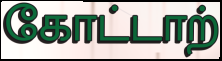
கோட்டாற்